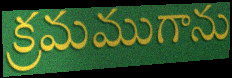
క్రమముగాను